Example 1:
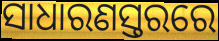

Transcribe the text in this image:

ସାଧାରଣସ୍ତରରେ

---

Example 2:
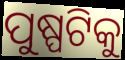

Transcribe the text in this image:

ପୁଷ୍ପଟିକୁ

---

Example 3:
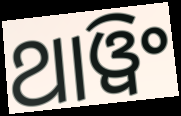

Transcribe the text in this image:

ଥାୱିଂ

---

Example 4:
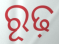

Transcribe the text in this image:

ରୂଢ଼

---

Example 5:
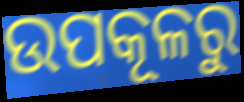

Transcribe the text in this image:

ଉପକୂଳରୁ